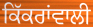
ਕਿੱਕਰਾਂਵਾਲੀ